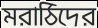
মরাঠিদের